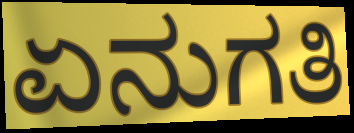
ಏನುಗತಿ